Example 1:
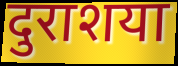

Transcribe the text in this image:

दुराशया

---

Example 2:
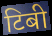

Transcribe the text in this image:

टिबी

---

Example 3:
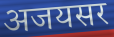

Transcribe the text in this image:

अजयसर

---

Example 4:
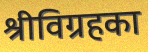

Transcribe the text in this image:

श्रीविग्रहका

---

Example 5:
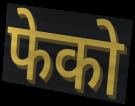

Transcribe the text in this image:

फेको